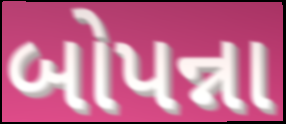
બોપન્ના